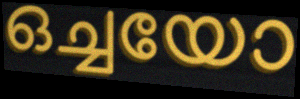
ഒച്ചയോ